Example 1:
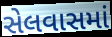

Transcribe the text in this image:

સેલવાસમાં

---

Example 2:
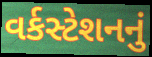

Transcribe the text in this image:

વર્કસ્ટેશનનું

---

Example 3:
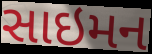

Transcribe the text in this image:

સાઇમન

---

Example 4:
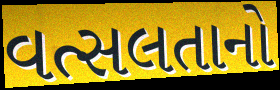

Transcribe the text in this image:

વત્સલતાનો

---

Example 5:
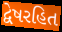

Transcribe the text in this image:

દ્વેષરહિત